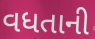
વધતાની